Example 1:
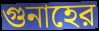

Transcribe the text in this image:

গুনাহের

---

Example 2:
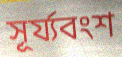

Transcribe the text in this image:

সূর্য্যবংশ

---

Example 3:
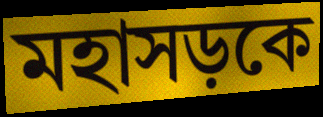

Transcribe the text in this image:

মহাসড়কে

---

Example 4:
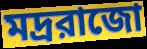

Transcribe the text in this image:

মদ্ররাজো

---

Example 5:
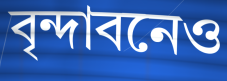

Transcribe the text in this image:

বৃন্দাবনেও